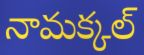
నామక్కల్